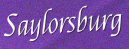
Saylorsburg